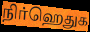
நிர்ஹெதுக